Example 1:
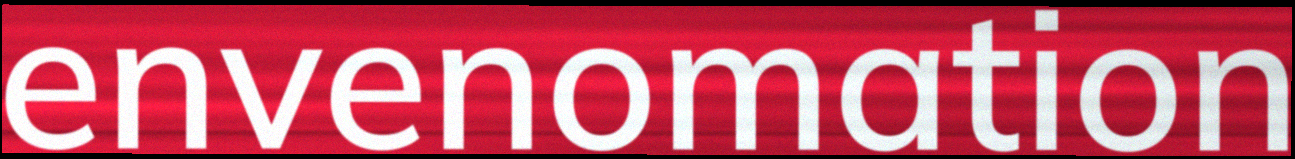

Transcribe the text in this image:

envenomation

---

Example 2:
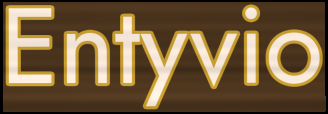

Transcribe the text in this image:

Entyvio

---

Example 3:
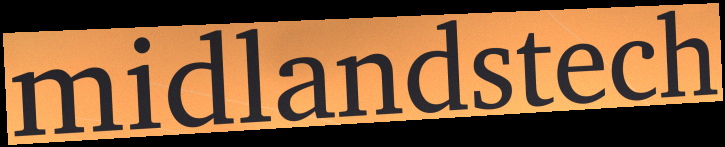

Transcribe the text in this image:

midlandstech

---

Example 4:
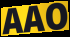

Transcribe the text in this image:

AAO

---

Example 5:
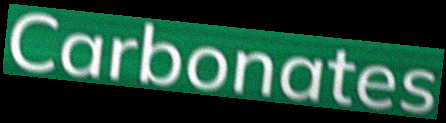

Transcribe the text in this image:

Carbonates